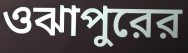
ওঝাপুরের